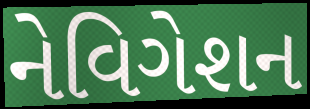
નેવિગેશન